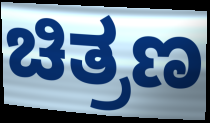
ಚಿತ್ರಣ